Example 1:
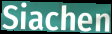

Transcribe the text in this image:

Siachen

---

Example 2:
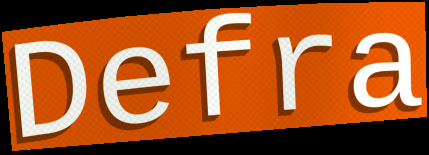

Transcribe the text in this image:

Defra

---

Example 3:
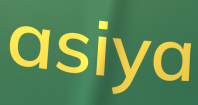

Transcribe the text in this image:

asiya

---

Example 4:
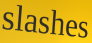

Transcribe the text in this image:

slashes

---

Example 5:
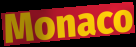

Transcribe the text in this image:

Monaco